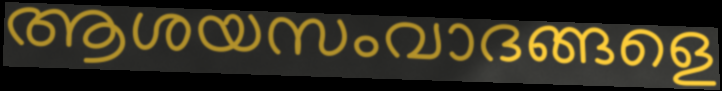
ആശയസംവാദങ്ങളെ